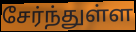
சேர்ந்துள்ள